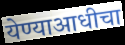
येण्याआधीचा